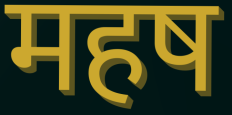
महष